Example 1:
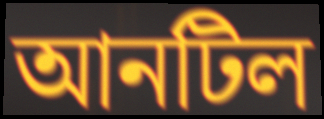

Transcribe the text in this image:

আনটিল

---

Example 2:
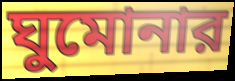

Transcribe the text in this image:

ঘুমোনার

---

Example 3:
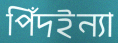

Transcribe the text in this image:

পিঁদইন্যা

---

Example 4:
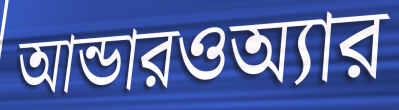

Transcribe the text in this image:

আন্ডারওঅ্যার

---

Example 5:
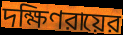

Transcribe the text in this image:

দক্ষিণরায়ের